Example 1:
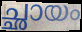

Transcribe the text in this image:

ച്ഛായം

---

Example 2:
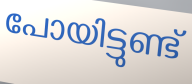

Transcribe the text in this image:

പോയിട്ടുണ്ട്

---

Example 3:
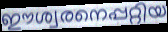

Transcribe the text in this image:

ഈശ്വരനെപ്പറ്റിയ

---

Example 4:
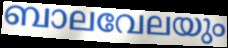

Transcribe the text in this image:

ബാലവേലയും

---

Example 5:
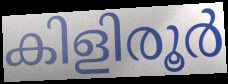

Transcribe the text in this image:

കിളിരൂർ